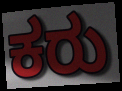
ಕರು